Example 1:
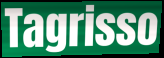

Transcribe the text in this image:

Tagrisso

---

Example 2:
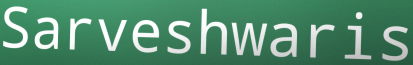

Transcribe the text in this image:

Sarveshwaris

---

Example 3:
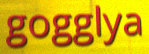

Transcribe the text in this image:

gogglya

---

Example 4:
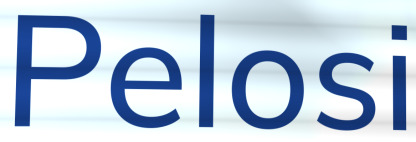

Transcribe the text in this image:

Pelosi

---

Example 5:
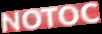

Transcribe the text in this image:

NOTOC